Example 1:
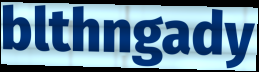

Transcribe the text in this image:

blthngady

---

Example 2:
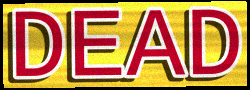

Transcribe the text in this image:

DEAD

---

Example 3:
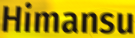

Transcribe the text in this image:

Himansu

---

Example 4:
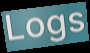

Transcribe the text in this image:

Logs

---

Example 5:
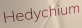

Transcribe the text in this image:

Hedychium